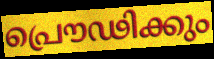
പ്രൌഢിക്കും